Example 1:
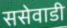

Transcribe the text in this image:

ससेवाडी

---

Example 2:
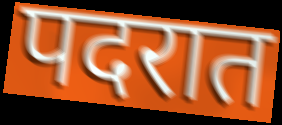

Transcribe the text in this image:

पदरात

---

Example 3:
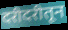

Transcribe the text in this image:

दरीदरीतून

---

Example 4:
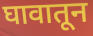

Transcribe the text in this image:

घावातून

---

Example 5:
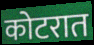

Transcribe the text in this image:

कोटरात